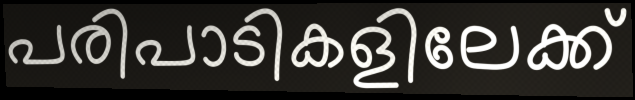
പരിപാടികളിലേക്ക്